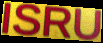
ISRU